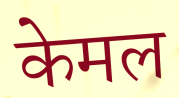
केमल